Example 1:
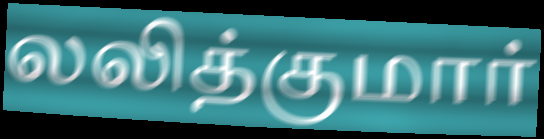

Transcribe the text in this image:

லலித்குமார்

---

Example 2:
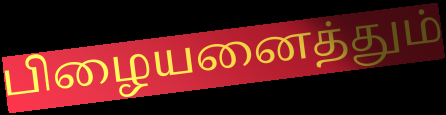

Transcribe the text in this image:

பிழையனைத்தும்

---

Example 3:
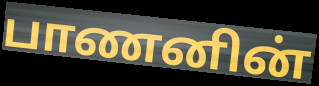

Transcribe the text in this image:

பாணனின்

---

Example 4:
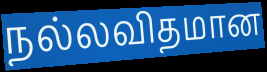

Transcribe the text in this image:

நல்லவிதமான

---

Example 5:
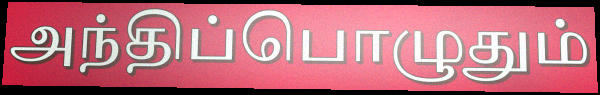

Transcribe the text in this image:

அந்திப்பொழுதும்